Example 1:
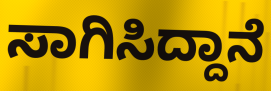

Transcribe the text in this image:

ಸಾಗಿಸಿದ್ದಾನೆ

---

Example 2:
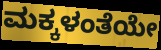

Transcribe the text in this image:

ಮಕ್ಕಳಂತೆಯೇ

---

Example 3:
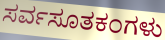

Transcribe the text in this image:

ಸರ್ವಸೂತಕಂಗಳು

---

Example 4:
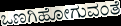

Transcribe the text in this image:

ಒಣಗಿಹೋಗುವಂತೆ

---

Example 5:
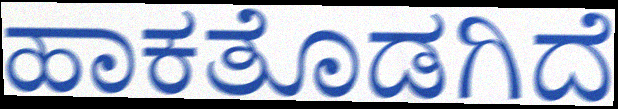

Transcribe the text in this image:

ಹಾಕತೊಡಗಿದೆ